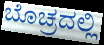
ಬೊಚ್ರದಲ್ಲಿ